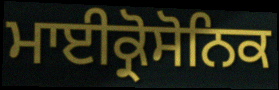
ਮਾਈਕ੍ਰੋਸੋਨਿਕ